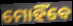
ମୋହିଁବେ